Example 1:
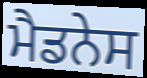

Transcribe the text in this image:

ਮੈਡਨੇਸ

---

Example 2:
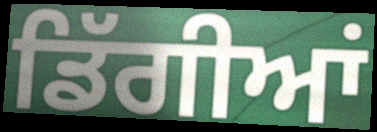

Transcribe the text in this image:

ਡਿੱਗੀਆਂ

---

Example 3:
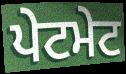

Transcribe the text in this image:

ਪੇਟਮੇਟ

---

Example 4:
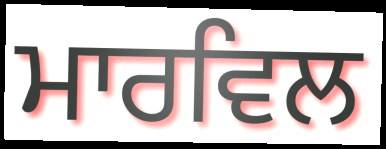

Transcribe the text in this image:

ਮਾਰਵਿਲ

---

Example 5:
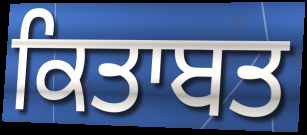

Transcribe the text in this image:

ਕਿਤਾਬਤ